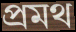
প্রমথ